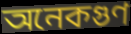
অনেকগুণ